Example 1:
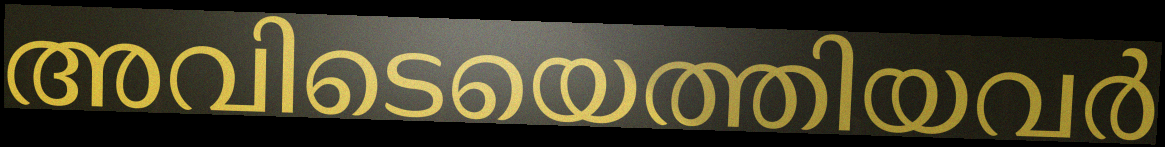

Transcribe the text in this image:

അവിടെയെത്തിയവർ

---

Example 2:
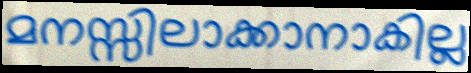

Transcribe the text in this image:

മനസ്സിലാക്കാനാകില്ല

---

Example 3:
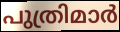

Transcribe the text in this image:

പുത്രിമാർ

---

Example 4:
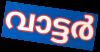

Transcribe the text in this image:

വാട്ടർ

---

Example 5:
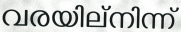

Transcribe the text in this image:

വരയില്നിന്ന്